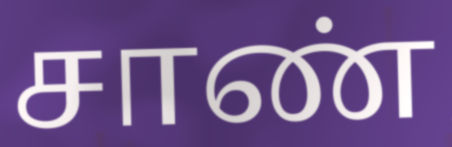
சாண்